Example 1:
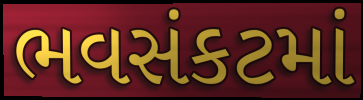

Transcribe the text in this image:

ભવસંકટમાં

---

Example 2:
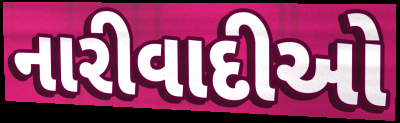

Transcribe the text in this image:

નારીવાદીઓ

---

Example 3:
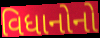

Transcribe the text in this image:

વિધાનોનો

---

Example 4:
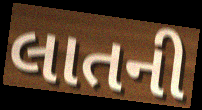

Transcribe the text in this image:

લાતની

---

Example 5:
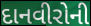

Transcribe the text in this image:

દાનવીરોની